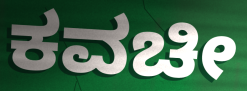
ಕವಚೀ